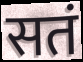
सतं